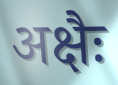
अक्षैः